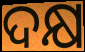
ଦକ୍ଷ